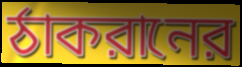
ঠাকরানের